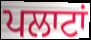
ਪਲਾਟਾਂ